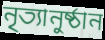
নৃত্যানুষ্ঠান